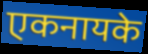
एकनायके